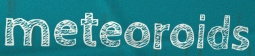
meteoroids